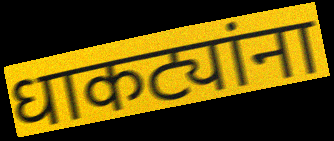
धाकट्यांना